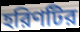
হরিণটির